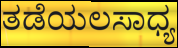
ತಡೆಯಲಸಾಧ್ಯ